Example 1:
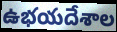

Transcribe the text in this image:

ఉభయదేశాల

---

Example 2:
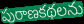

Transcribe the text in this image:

పురాణకథలను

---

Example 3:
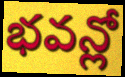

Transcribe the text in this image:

భవన్లో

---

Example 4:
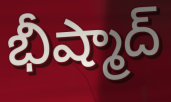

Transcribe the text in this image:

భీష్మాద్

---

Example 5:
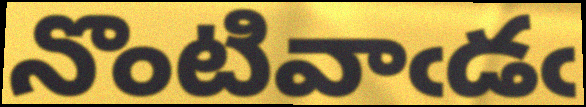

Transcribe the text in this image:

నొంటివాఁడఁ